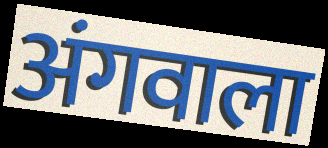
अंगवाला